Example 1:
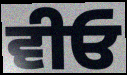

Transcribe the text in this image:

ਵੀਓ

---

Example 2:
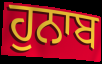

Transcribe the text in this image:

ਹੁਨਾਬ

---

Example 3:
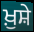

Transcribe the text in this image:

ਖ਼ੁਸ਼ੇ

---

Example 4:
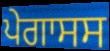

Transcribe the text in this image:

ਪੇਗਾਸਸ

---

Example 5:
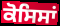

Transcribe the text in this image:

ਕੋਸਿਸਾਂ